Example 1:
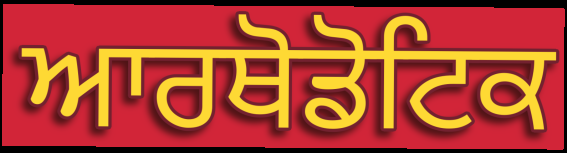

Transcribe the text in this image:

ਆਰਥੋਡੋਟਿਕ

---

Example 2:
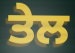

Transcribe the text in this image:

ਤੇਲ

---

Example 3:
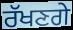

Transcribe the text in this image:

ਰੱਖਣਗੇ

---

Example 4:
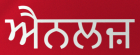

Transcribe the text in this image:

ਐਨਲਜ਼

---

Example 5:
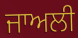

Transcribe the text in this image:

ਜਾਅਲੀ